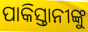
ପାକିସ୍ତାନୀଙ୍କୁ